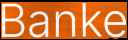
Banke